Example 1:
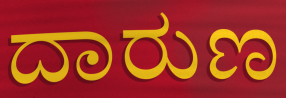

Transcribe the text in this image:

ದಾರುಣ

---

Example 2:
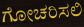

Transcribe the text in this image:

ಗೋಚರಿಸಲಿ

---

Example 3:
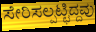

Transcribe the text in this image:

ಸೇರಿಸಲ್ಪಟ್ಟಿದ್ದವು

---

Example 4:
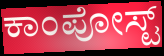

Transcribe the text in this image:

ಕಾಂಪೋಸ್ಟ್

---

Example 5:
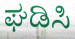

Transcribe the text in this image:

ಘಡಿಸಿ